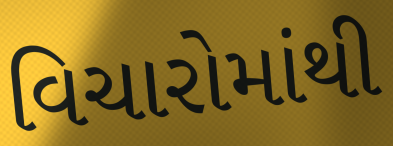
વિચારોમાંથી